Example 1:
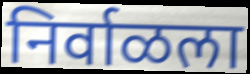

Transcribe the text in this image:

निर्वाळला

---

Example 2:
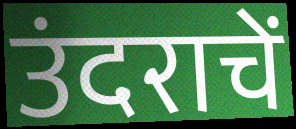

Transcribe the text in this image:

उंदराचें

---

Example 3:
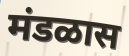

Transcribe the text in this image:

मंडळास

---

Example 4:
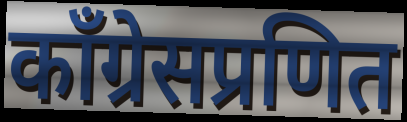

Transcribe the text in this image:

काँग्रेसप्रणित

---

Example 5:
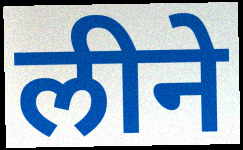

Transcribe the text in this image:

लीने